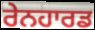
ਰੇਨਹਾਰਡ